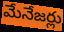
మేనేజర్లు